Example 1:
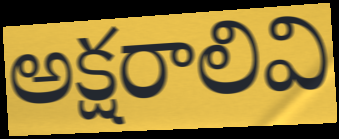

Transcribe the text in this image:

అక్షరాలివి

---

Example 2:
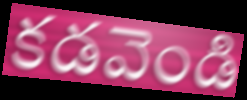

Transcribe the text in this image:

కడవెండి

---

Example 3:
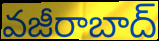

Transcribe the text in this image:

వజీరాబాద్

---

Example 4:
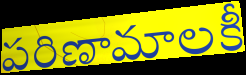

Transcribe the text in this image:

పరిణామాలకీ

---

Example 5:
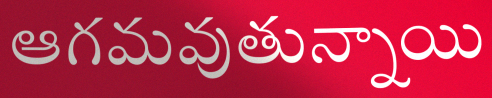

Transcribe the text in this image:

ఆగమవుతున్నాయి